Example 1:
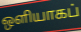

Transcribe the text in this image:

ஒளியாகப்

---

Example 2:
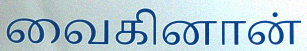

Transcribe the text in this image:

வைகினான்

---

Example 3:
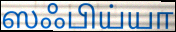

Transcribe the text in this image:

ஸஃபிய்யா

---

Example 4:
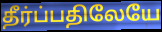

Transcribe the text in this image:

தீர்ப்பதிலேயே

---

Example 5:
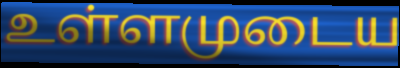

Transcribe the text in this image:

உள்ளமுடைய